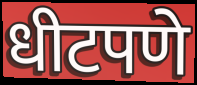
धीटपणे